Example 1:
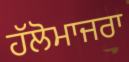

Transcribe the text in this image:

ਹੱਲੋਮਾਜਰਾ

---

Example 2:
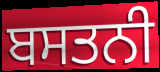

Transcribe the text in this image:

ਬਸਤਨੀ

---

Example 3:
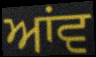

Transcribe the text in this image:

ਆਂਵ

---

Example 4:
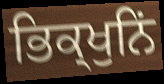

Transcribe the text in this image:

ਭਿਕ੍ਖੁਨਿਂ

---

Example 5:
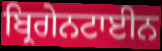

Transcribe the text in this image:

ਬ੍ਰਿਗੇਨਟਾਈਨ